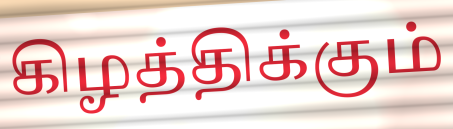
கிழத்திக்கும்